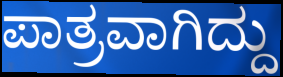
ಪಾತ್ರವಾಗಿದ್ದು